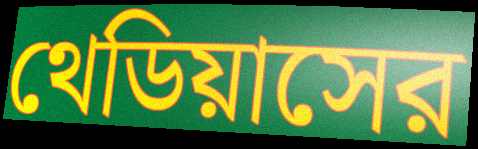
থেডিয়াসের